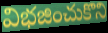
విభజించుకొని